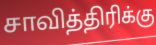
சாவித்திரிக்கு